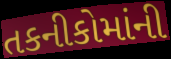
તકનીકોમાંની